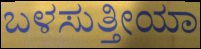
ಬಳಸುತ್ತೀಯಾ